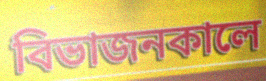
বিভাজনকালে